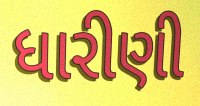
ધારીણી